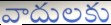
వాదులకు